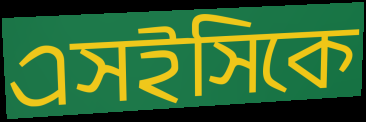
এসইসিকে